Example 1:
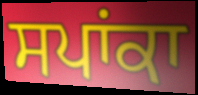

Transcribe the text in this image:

ਸਪਾਂਕਾ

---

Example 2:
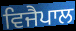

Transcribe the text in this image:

ਵਿਜੈਪਾਲ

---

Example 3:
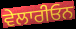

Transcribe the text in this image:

ਵੇਲਾਰੀਓਨ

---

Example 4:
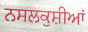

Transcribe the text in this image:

ਨਸਲਕੁਸ਼ੀਆਂ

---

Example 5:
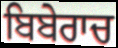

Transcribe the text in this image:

ਬਿਬੇਰਾਚ